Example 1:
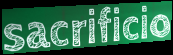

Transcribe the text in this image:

sacrificio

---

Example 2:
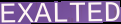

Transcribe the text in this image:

EXALTED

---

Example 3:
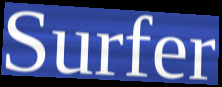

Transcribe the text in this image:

Surfer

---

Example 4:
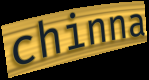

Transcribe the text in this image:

chinna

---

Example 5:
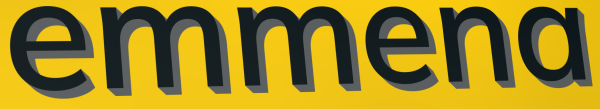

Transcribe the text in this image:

emmena